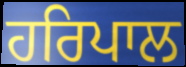
ਹਰਿਪਾਲ